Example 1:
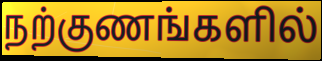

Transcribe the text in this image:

நற்குணங்களில்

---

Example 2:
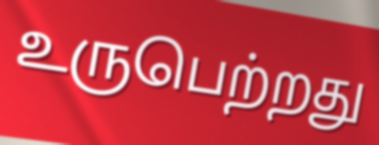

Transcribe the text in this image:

உருபெற்றது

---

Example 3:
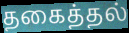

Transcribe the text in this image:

தகைத்தல்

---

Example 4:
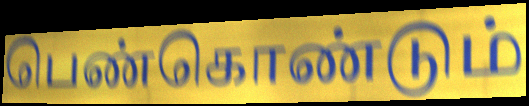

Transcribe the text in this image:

பெண்கொண்டும்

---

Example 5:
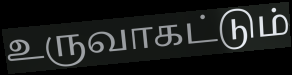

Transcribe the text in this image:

உருவாகட்டும்